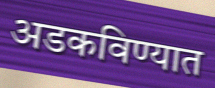
अडकविण्यात